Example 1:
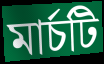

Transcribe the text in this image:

মার্চটি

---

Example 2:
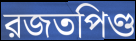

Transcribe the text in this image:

রজতপিণ্ড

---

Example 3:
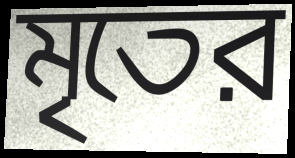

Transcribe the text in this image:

মৃতের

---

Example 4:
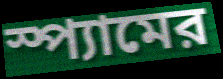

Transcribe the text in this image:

স্প্যামের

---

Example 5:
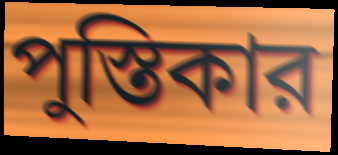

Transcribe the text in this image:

পুস্তিকার